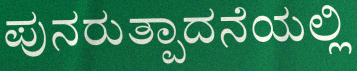
ಪುನರುತ್ಪಾದನೆಯಲ್ಲಿ